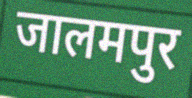
जालमपुर